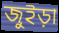
জুইড়া